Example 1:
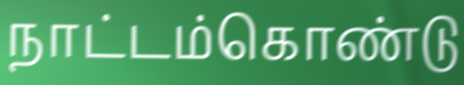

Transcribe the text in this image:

நாட்டம்கொண்டு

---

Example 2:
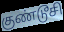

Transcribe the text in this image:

குண்டூசி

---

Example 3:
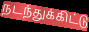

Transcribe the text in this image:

நடந்துக்கிட்டு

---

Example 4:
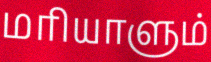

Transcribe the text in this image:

மரியாளும்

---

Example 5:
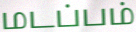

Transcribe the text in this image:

மடப்பம்